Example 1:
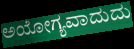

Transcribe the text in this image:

ಅಯೋಗ್ಯವಾದುದು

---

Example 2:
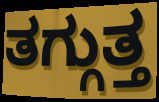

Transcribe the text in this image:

ತಗ್ಗುತ್ತ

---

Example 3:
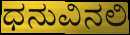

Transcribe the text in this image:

ಧನುವಿನಲಿ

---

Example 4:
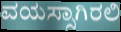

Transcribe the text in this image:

ವಯಸ್ಸಾಗಿರಲಿ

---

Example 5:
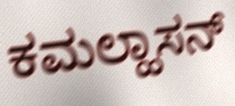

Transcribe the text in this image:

ಕಮಲ್ಹಾಸನ್